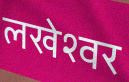
लखेश्वर